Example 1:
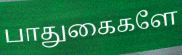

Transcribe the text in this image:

பாதுகைகளே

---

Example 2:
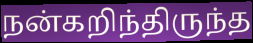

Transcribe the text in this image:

நன்கறிந்திருந்த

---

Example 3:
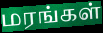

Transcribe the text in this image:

மரங்கள்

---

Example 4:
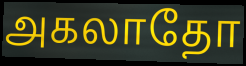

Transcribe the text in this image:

அகலாதோ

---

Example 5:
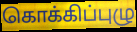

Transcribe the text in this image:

கொக்கிப்புழு